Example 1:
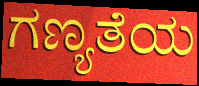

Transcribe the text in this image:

ಗಣ್ಯತೆಯ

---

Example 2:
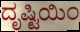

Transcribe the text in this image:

ದೃಷ್ಟಿಯಿಂ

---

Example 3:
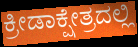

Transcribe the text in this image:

ಕ್ರೀಡಾಕ್ಷೇತ್ರದಲ್ಲಿ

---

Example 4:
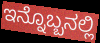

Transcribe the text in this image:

ಇನ್ನೊಬ್ಬನಲ್ಲಿ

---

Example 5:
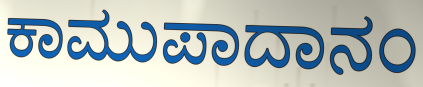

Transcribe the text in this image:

ಕಾಮುಪಾದಾನಂ